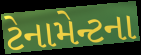
ટેનામેન્ટના